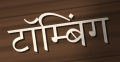
टॉम्बिंग